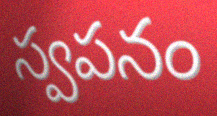
స్వపనం